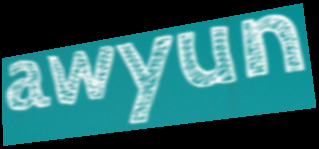
awyun